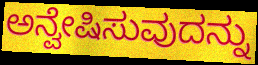
ಅನ್ವೇಷಿಸುವುದನ್ನು